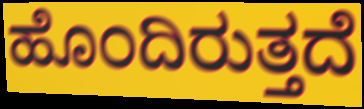
ಹೊಂದಿರುತ್ತದೆ